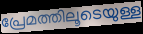
പ്രേമത്തിലൂടെയുള്ള